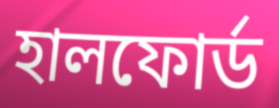
হালফোর্ড